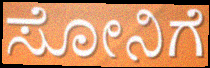
ಸೋನಿಗೆ